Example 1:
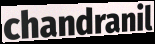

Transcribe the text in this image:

chandranil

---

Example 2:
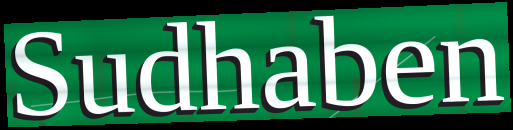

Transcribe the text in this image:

Sudhaben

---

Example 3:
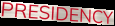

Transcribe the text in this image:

PRESIDENCY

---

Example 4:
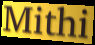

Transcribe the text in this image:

Mithi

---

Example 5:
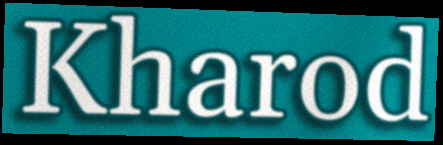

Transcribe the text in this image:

Kharod